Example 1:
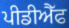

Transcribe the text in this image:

ਪੀਡੀਐੱਫ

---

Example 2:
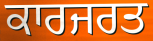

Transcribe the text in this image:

ਕਾਰਜਰਤ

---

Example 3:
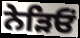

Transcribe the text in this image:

ਨੇੜਿਓਂ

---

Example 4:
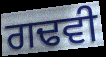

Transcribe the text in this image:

ਗਢਵੀ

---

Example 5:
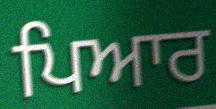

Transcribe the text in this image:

ਪਿਆਰ